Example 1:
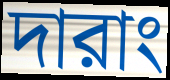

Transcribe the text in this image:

দারাং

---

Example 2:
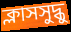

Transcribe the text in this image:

ক্লাসসুদ্ধু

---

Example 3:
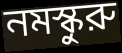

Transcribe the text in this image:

নমস্কুরু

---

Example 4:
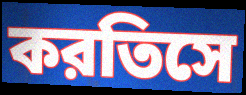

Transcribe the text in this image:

করতিসে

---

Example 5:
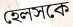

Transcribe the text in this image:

হেলসকে